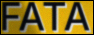
FATA